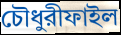
চৌধুরীফাইল